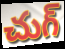
చుగ్